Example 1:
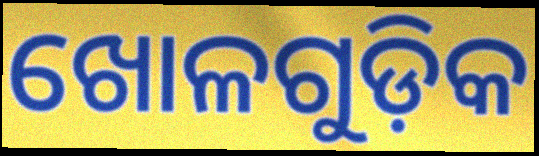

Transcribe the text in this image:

ଖୋଳଗୁଡ଼ିକ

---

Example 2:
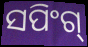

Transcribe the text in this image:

ସପିଂଗ୍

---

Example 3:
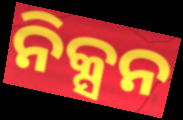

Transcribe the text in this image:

ନିକ୍ସନ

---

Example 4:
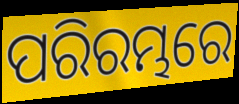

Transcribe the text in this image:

ପରିରମ୍ଭରେ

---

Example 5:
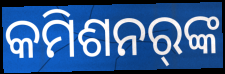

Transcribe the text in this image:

କମିଶନର୍‌ଙ୍କ